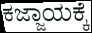
ಕಜ್ಜಾಯಕ್ಕೆ